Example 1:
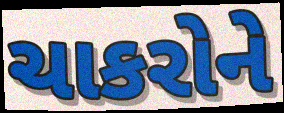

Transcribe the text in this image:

ચાકરોને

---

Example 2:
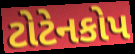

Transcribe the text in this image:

ટોટેનકોપ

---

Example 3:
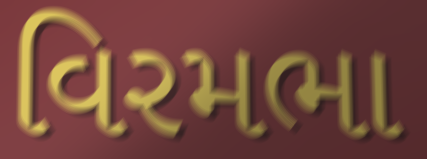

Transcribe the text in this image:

વિરમભા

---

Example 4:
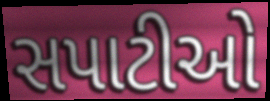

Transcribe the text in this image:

સપાટીઓ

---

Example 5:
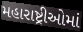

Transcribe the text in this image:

મહારાષ્ટ્રીઓમાં